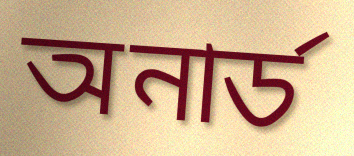
অনার্ড